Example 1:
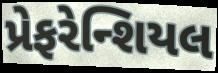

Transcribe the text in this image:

પ્રેફરેન્શિયલ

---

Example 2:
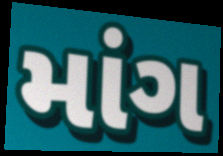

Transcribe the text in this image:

માંગ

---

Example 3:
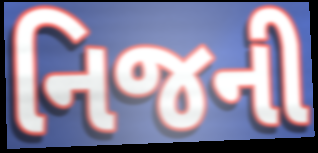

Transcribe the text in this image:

નિજની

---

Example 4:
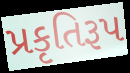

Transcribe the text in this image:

પ્રકૃતિરૂપ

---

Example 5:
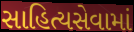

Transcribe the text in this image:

સાહિત્યસેવામાં